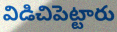
విడిచిపెట్టారు